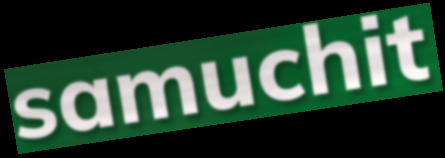
samuchit